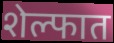
शेल्फात